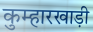
कुम्हारखाड़ी